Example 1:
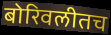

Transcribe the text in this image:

बोरिवलीतच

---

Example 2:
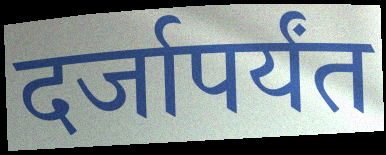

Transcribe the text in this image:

दर्जापर्यंत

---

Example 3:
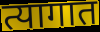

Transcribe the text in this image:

त्यागात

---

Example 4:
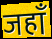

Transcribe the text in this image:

जहाँ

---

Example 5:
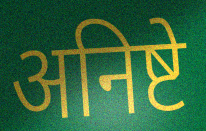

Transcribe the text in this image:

अनिष्टे